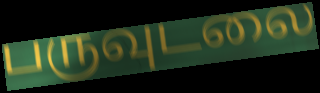
பருவுடலை